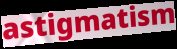
astigmatism